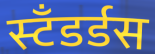
स्टँडर्डस